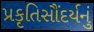
પ્રકૃતિસૌંદર્યનું